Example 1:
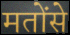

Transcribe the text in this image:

मतोंसे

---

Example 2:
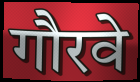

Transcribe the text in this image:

गौरवे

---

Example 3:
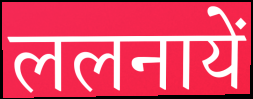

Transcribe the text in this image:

ललनायें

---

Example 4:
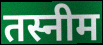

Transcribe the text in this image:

तस्नीम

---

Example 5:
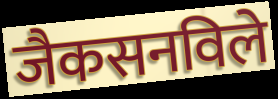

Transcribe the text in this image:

जैकसनविले